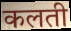
कलती